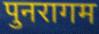
पुनरागम